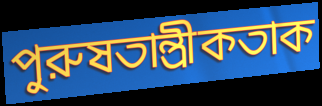
পুৰুষতান্ত্ৰীকতাক